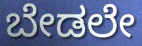
ಬೇಡಲೇ